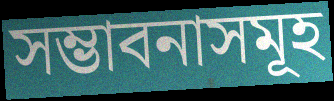
সম্ভাবনাসমূহ